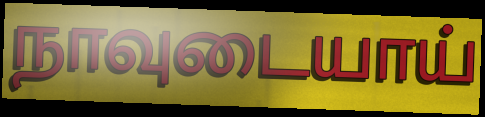
நாவுடையாய்